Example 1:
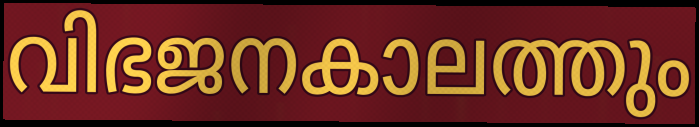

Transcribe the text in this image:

വിഭജനകാലത്തും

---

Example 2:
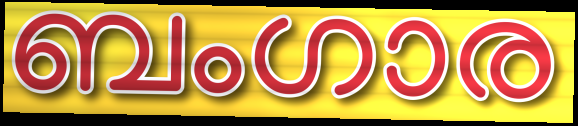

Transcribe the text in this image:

ബംഗാര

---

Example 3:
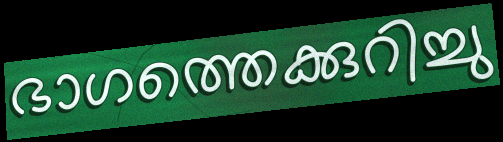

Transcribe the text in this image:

ഭാഗത്തെക്കുറിച്ചു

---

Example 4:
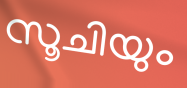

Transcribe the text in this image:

സൂചിയും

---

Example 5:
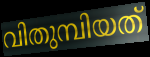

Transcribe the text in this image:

വിതുമ്പിയത്